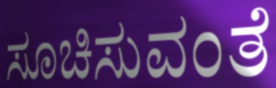
ಸೂಚಿಸುವಂತೆ